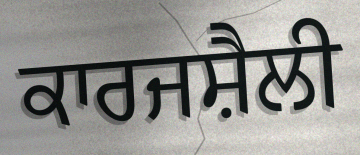
ਕਾਰਜਸ਼ੈਲੀ